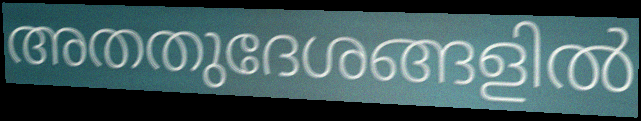
അതതുദേശങ്ങളിൽ